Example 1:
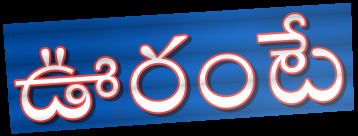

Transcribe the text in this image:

ఊరంటే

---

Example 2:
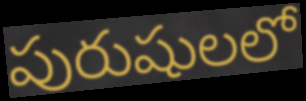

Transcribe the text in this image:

పురుషులలో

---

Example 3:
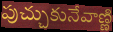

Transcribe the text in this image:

పుచ్చుకునేవాణ్ణి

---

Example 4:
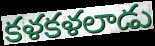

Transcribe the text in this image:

కళకళలాడు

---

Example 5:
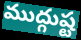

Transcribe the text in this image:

ముద్గుష్ట